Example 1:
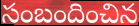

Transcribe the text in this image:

సంబందించిన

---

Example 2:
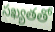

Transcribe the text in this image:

సఖ్యతతో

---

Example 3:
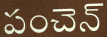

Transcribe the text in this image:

పంచెన్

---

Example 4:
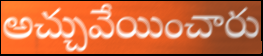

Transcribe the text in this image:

అచ్చువేయించారు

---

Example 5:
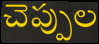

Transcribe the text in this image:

చెప్పుల